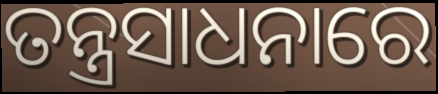
ତନ୍ତ୍ରସାଧନାରେ